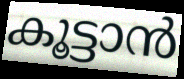
കൂട്ടാൻ